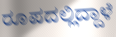
ರೂಪದಲ್ಲಿದ್ದಾಳೆ